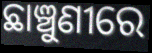
ଛାଞ୍ଚୁଣୀରେ